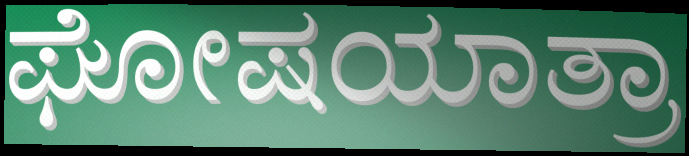
ಘೋಷಯಾತ್ರಾ